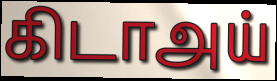
கிடாஅய்